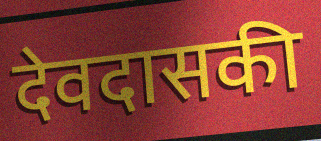
देवदासकी